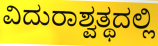
ವಿದುರಾಶ್ವತ್ಥದಲ್ಲಿ